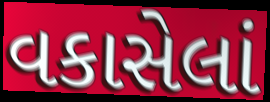
વકાસેલાં